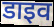
डाइव